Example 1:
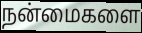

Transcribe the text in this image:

நன்மைகளை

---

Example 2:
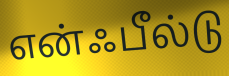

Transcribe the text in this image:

என்ஃபீல்டு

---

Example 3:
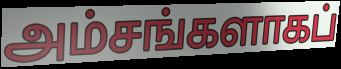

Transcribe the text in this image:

அம்சங்களாகப்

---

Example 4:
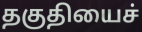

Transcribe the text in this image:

தகுதியைச்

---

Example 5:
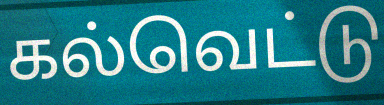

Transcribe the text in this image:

கல்வெட்டு